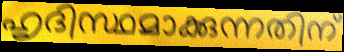
ഹൃദിസ്ഥമാക്കുന്നതിന്